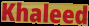
Khaleed